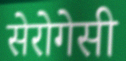
सेरोगेसी